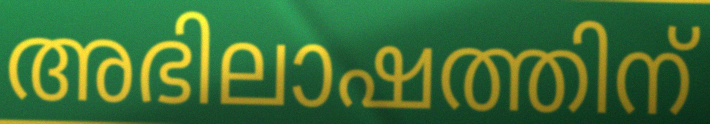
അഭിലാഷത്തിന്